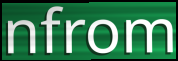
nfrom